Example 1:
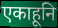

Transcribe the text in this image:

एकाहूनि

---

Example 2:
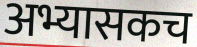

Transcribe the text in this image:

अभ्यासकच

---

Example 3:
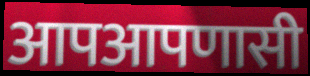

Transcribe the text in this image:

आपआपणासी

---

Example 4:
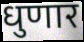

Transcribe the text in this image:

धुणार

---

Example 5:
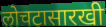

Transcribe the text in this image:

लोचटासारखी